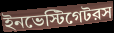
ইনভেস্টিগেটরস